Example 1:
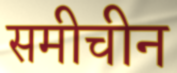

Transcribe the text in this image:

समीचीन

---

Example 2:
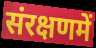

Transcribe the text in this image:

संरक्षणमें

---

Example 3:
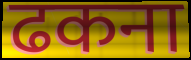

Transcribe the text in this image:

ढकना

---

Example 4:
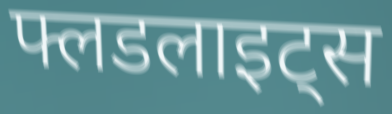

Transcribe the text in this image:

फ्लडलाइट्स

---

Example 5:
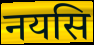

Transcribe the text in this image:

नयसि